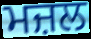
ਮਜ਼ਲ